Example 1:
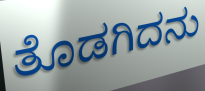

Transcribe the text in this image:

ತೊಡಗಿದನು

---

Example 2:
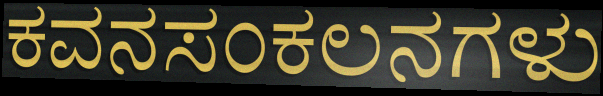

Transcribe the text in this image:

ಕವನಸಂಕಲನಗಳು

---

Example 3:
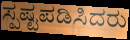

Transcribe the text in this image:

ಸ್ಪಷ್ಟಪಡಿಸಿದರು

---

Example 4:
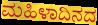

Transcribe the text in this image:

ಮಹಿಳಾದಿನದ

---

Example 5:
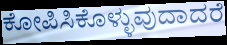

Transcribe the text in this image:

ಕೋಪಿಸಿಕೊಳ್ಳುವುದಾದರೆ